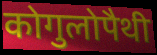
कोगुलोपैथी